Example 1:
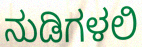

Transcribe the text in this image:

ನುಡಿಗಳಲಿ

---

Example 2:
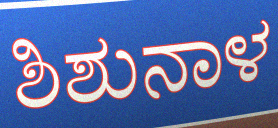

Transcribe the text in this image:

ಶಿಶುನಾಳ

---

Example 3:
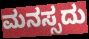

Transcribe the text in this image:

ಮನಸ್ಸದು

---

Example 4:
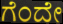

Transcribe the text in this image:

ಗೆಂದೇ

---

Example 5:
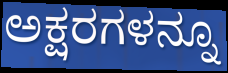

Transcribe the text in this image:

ಅಕ್ಷರಗಳನ್ನೂ